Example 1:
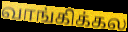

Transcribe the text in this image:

வாங்கிக்கல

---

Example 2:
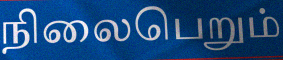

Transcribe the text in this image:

நிலைபெறும்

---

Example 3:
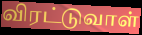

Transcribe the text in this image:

விரட்டுவாள்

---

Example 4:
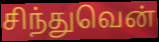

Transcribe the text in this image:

சிந்துவென்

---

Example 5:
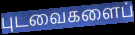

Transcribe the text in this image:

புடவைகளைப்